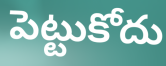
పెట్టుకోదు